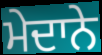
ਮੇਦਾਨੇ